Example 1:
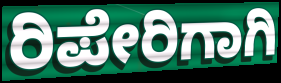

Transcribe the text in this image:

ರಿಪೇರಿಗಾಗಿ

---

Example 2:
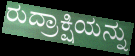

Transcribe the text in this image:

ರುದ್ರಾಕ್ಷಿಯನ್ನು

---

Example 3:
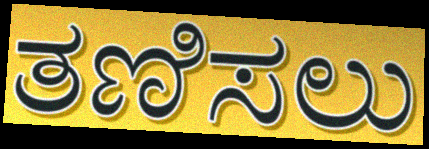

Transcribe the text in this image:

ತಣಿಸಲು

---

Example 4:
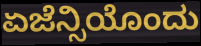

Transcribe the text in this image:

ಏಜೆನ್ಸಿಯೊಂದು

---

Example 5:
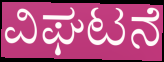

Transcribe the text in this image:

ವಿಘಟನೆ